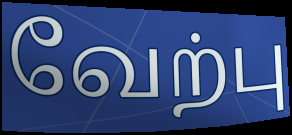
வேற்பு